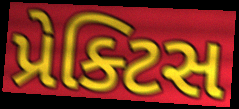
પ્રેક્ટિસ